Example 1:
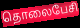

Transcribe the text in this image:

தொலைபேசி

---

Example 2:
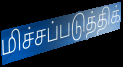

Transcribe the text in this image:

மிச்சப்படுத்திக்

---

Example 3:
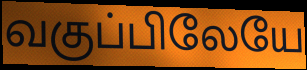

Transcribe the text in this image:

வகுப்பிலேயே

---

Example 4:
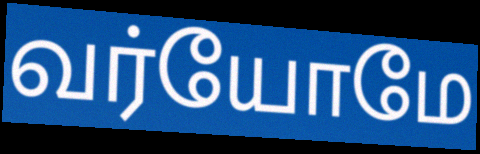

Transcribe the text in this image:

வர்யோமே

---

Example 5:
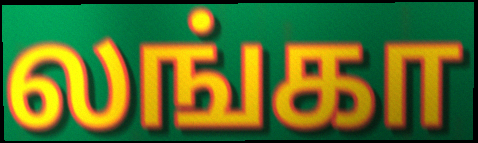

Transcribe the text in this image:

லங்கா